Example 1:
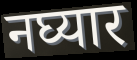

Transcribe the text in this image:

नघ्यार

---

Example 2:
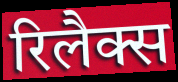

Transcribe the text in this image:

रिलैक्स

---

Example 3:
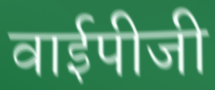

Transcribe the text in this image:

वाईपीजी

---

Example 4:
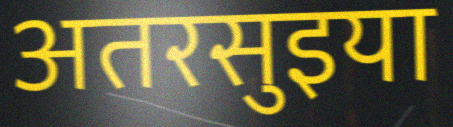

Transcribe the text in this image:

अतरसुइया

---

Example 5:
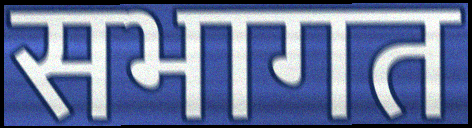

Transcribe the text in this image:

सभागत